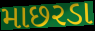
માછરડા